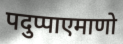
पदुप्पाएमाणो